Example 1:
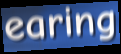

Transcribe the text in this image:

earing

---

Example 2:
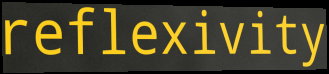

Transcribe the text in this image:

reflexivity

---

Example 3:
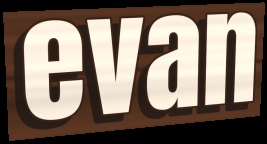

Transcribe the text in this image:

evan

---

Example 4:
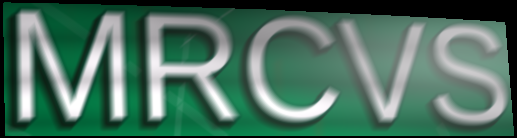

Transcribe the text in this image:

MRCVS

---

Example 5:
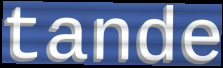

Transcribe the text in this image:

tande